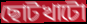
ছোটখাটো